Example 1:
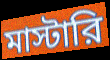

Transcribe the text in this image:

মাস্টারি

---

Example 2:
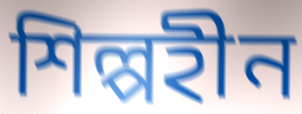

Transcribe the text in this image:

শিল্পহীন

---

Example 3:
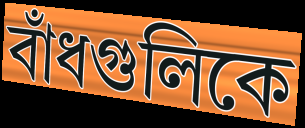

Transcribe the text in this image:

বাঁধগুলিকে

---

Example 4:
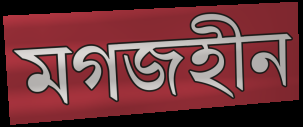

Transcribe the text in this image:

মগজহীন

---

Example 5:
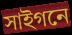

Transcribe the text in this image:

সাইগনে